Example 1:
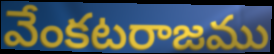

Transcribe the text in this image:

వేంకటరాజము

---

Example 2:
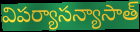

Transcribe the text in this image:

విపర్యాసన్యాసాత్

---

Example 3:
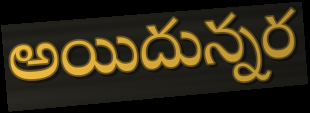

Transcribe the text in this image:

అయిదున్నర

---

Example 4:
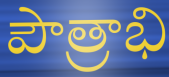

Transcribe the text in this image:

పౌత్రాభి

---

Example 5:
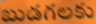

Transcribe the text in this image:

బుడగలకు